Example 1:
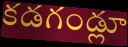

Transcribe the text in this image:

కడగండ్లూ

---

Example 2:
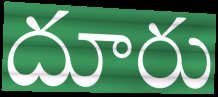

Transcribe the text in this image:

దూరు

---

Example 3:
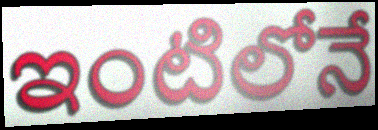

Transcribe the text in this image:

ఇంటిలోనే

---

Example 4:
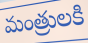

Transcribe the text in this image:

మంత్రులకి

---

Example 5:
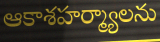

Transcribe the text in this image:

ఆకాశహర్మ్యాలను